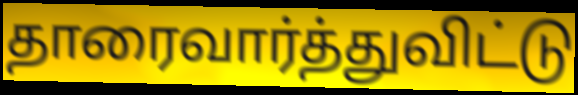
தாரைவார்த்துவிட்டு